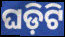
ଘଡ଼ିଟି